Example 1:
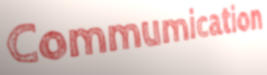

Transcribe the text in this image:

Commumication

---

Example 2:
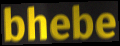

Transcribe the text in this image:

bhebe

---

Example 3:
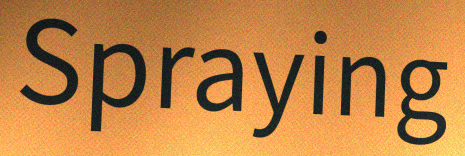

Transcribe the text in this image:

Spraying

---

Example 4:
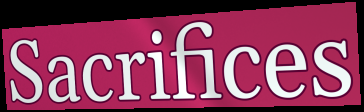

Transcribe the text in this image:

Sacrifices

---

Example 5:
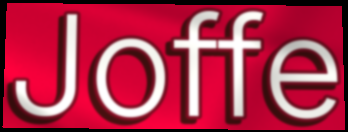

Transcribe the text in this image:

Joffe